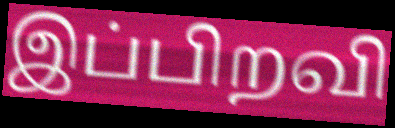
இப்பிறவி